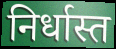
निर्धास्त